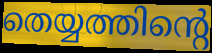
തെയ്യത്തിന്റെ